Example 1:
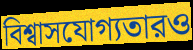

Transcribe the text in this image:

বিশ্বাসযোগ্যতারও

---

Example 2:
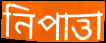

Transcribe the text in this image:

নিপাত্তা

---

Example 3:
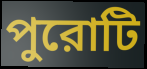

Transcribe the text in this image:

পুরোটি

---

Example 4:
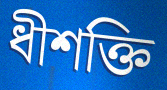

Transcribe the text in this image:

ধীশক্তি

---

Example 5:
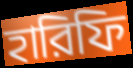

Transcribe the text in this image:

হারিফি